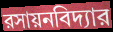
রসায়নবিদ্যার